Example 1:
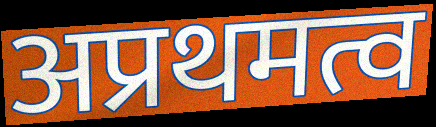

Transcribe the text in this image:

अप्रथमत्व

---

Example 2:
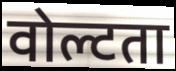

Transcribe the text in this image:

वोल्टता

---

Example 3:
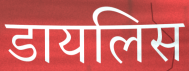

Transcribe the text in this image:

डायलिस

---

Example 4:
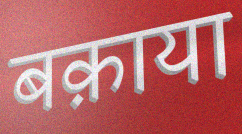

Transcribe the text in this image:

बक़ाया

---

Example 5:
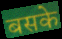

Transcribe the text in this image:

बसके